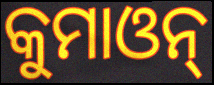
କୁମାଓନ୍